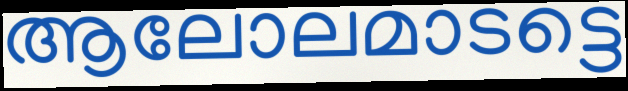
ആലോലമാടട്ടെ